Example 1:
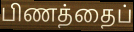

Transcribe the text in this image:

பிணத்தைப்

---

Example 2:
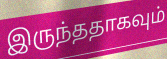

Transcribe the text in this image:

இருந்ததாகவும்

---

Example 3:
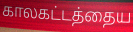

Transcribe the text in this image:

காலகட்டத்தைய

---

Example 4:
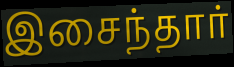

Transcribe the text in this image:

இசைந்தார்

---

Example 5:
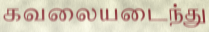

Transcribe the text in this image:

கவலையடைந்து